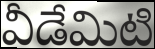
వీడేమిటి